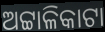
ଅଟ୍ଟାଳିକାଟା